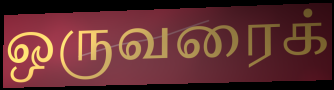
ஒருவரைக்